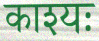
काश्यः